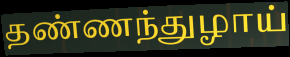
தண்ணந்துழாய்